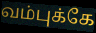
வம்புக்கே